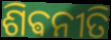
ଶିଵନୀତି